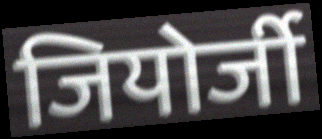
जियोर्जी